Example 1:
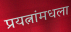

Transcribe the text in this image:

प्रयत्नांमधला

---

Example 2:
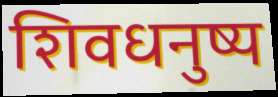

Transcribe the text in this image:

शिवधनुष्य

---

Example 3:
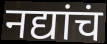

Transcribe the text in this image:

नद्यांचं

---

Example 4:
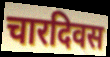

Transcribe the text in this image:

चारदिवस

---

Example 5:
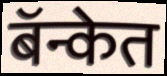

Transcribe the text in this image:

बॅन्केत